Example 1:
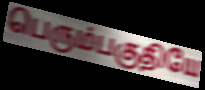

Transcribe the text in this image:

பெரும்பகுதியே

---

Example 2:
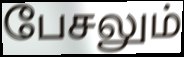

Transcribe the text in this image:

பேசலும்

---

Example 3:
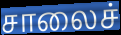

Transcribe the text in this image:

சாலைச்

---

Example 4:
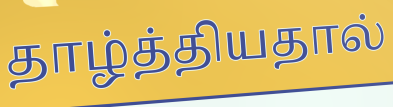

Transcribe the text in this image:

தாழ்த்தியதால்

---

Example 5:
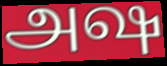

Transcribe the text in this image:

அஷ